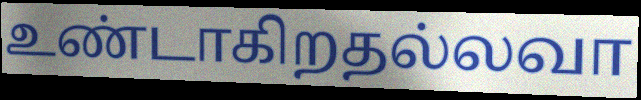
உண்டாகிறதல்லவா